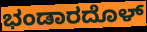
ಭಂಡಾರದೊಳ್